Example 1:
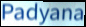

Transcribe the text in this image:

Padyana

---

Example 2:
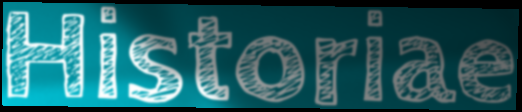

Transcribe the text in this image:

Historiae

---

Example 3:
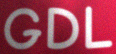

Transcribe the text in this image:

GDL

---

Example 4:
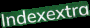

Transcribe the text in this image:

Indexextra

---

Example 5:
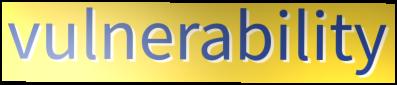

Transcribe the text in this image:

vulnerability